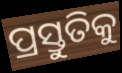
ପ୍ରସ୍ତୁତିକୁ